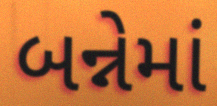
બન્નેમાં